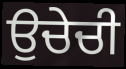
ਉਚੇਚੀ